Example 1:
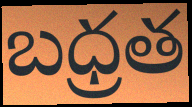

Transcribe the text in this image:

బధ్రత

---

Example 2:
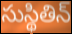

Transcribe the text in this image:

సుస్థితిన్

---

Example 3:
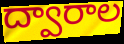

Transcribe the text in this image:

ద్వారాల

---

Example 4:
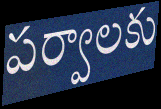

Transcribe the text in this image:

పర్వాలకు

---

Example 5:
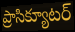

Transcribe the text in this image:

ప్రాసిక్యూటర్